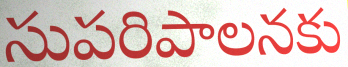
సుపరిపాలనకు